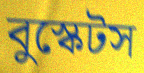
বুস্কেটস